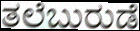
ತಲೆಬುರುಡೆ